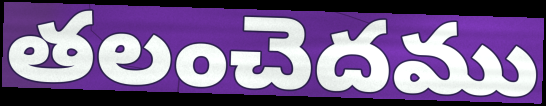
తలంచెదము